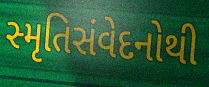
સ્મૃતિસંવેદનોથી